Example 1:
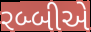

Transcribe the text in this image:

રબ્બીએ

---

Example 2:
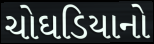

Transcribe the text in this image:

ચોઘડિયાનો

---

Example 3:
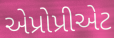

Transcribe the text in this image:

એપ્રોપ્રીએટ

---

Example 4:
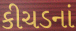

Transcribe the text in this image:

કીચડનાં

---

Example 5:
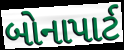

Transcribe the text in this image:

બોનાપાર્ટ